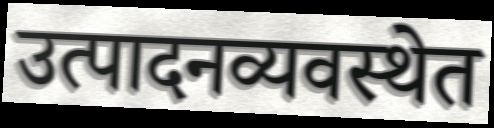
उत्पादनव्यवस्थेत